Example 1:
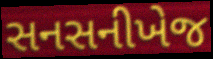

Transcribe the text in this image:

સનસનીખેજ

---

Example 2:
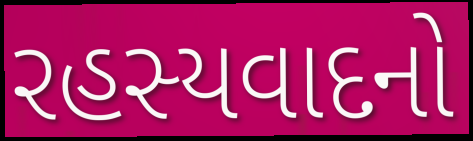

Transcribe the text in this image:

રહસ્યવાદનો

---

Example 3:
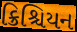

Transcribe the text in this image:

ક્રિશ્ચિયન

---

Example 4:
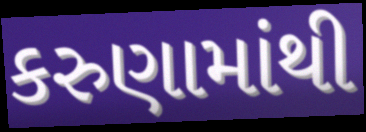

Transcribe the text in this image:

કરુણામાંથી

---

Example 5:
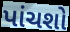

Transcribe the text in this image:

પાંચશો